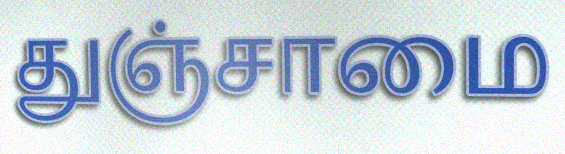
துஞ்சாமை